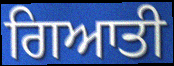
ਗਿਆਤੀ